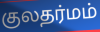
குலதர்மம்